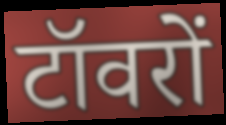
टॉवरों